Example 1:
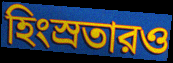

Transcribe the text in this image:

হিংস্রতারও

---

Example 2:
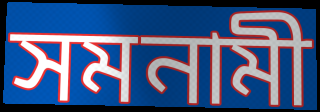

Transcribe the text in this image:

সমনামী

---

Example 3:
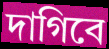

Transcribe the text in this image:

দাগিবে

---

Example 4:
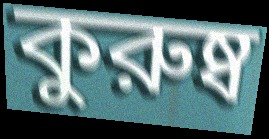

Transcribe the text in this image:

কুরুষ্ব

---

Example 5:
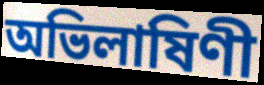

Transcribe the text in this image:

অভিলাষিণী